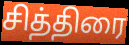
சித்திரை